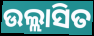
ଉଲ୍ଲାସିତ